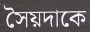
সৈয়দাকে